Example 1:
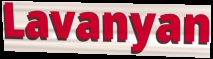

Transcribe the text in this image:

Lavanyan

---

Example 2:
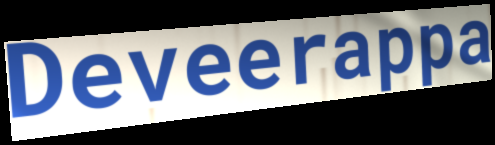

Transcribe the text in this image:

Deveerappa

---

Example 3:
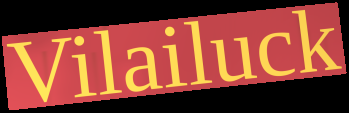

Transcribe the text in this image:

Vilailuck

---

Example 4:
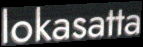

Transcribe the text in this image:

lokasatta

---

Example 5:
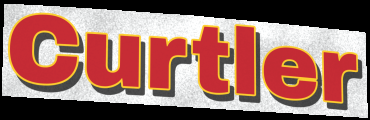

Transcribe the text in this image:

Curtler